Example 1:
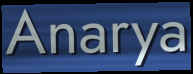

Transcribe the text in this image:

Anarya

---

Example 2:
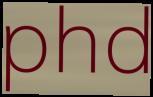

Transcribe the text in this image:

phd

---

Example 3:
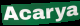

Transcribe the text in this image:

Acarya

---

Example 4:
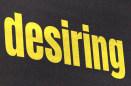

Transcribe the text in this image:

desiring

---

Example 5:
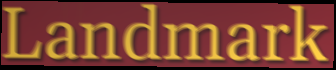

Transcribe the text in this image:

Landmark